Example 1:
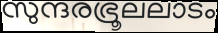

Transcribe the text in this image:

സുന്ദരഭ്രൂലലാടം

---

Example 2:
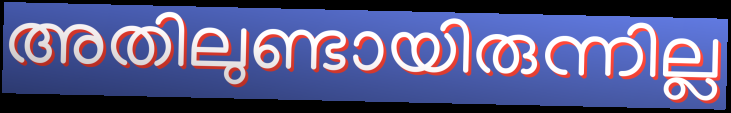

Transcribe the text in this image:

അതിലുണ്ടായിരുന്നില്ല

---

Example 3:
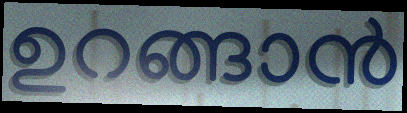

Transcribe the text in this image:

ഉറങ്ങാൻ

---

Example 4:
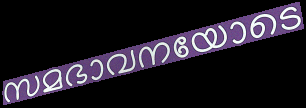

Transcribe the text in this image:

സമഭാവനയോടെ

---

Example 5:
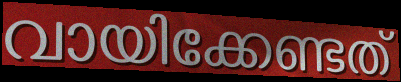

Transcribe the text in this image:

വായിക്കേണ്ടത്